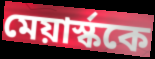
মেয়ার্স্ককে